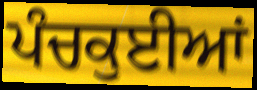
ਪੰਚਕੁਈਆਂ